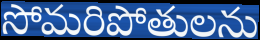
సోమరిపోతులను